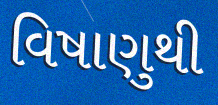
વિષાણુથી